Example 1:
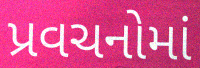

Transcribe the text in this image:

પ્રવચનોમાં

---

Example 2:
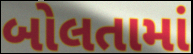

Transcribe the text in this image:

બોલતામાં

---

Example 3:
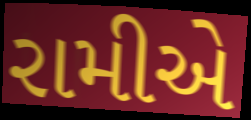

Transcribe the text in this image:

રામીએ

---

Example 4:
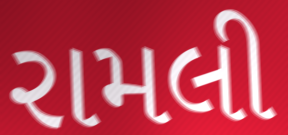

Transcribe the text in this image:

રામલી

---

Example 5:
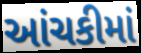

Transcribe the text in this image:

આંચકીમાં